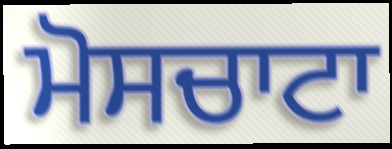
ਮੋਸਚਾਟਾ